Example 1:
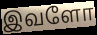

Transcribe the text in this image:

இவளோ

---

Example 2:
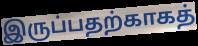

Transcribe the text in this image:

இருப்பதற்காகத்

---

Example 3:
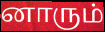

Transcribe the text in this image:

னாரும்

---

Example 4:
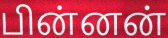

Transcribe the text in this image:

பின்னன்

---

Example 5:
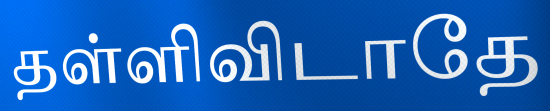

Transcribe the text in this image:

தள்ளிவிடாதே